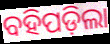
ବହିପଡ଼ିଲା